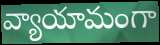
వ్యాయామంగా